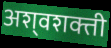
अश्वशक्ती